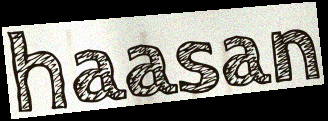
haasan